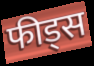
फीड्स